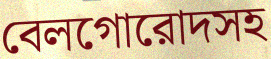
বেলগোরোদসহ